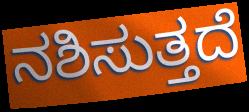
ನಶಿಸುತ್ತದೆ